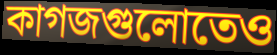
কাগজগুলোতেও